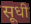
सूधी